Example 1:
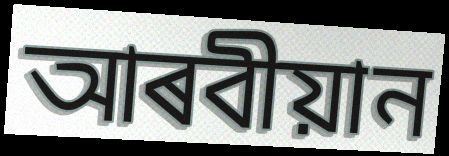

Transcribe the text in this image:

আৰবীয়ান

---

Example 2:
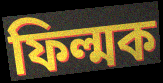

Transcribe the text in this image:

ফিল্মক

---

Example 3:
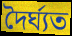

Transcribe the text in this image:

দৈৰ্ঘ্যত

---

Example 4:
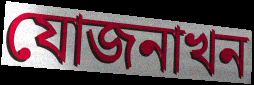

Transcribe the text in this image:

যোজনাখন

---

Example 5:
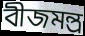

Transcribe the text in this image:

বীজমন্ত্ৰ